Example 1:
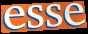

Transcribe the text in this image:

esse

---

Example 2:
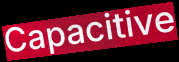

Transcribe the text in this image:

Capacitive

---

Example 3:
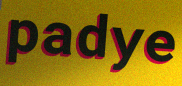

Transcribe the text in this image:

padye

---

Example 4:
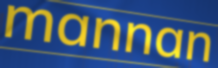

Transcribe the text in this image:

mannan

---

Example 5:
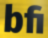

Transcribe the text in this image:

bfi